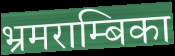
भ्रमराम्बिका